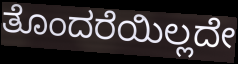
ತೊಂದರೆಯಿಲ್ಲದೇ